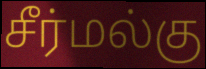
சீர்மல்கு